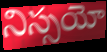
నిస్సయో